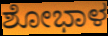
ಶೋಭಾಳ